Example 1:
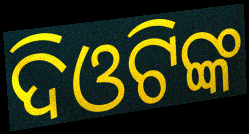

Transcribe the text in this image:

ଦିଓଟିଙ୍କ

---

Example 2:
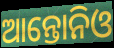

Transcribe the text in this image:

ଆନ୍ତୋନିଓ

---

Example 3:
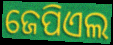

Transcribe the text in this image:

ଜେପିଏଲ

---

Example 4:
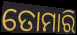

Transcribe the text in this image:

ତୋମାରି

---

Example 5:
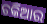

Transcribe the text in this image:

ଚକିଆର